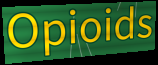
Opioids